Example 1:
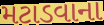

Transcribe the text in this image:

મટાડવાના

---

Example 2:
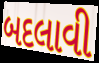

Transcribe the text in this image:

બદલાવી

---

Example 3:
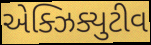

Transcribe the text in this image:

એક્ઝિક્યુટીવ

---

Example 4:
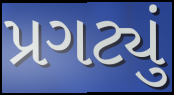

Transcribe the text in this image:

પ્રગટ્યું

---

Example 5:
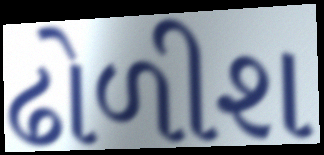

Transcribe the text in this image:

ઢોળીશ